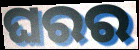
ଘରର